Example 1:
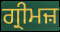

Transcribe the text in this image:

ਗ੍ਰੀਮਜ਼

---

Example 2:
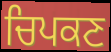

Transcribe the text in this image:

ਚਿਪਕਣ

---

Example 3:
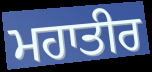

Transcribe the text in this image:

ਮਹਾਤੀਰ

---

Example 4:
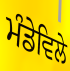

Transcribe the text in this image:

ਮੰਡੇਵਿਲੇ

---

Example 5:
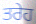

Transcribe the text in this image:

ਤਰੇਹ